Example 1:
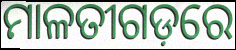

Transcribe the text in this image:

ମାଳତୀଗଡ଼ରେ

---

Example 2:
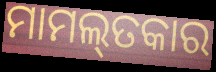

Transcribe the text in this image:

ମାମଲ୍‌ତକାର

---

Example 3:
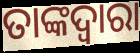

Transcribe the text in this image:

ତାଙ୍କଦ୍ୱାରା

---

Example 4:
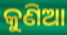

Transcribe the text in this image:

କୁଣିଆ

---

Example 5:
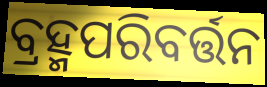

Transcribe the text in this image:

ବ୍ରହ୍ମପରିବର୍ତ୍ତନ